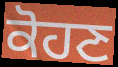
ਕੋਹਣ